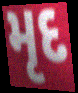
મૃદ